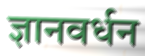
ज्ञानवर्धन